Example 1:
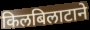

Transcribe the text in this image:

किलबिलाटाने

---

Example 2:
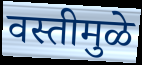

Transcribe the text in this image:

वस्तीमुळे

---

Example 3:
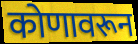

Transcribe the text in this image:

कोणावरून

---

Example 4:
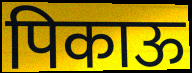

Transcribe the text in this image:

पिकाऊ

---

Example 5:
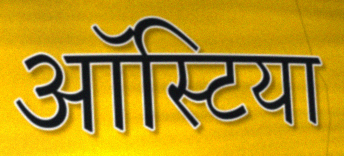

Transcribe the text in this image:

ऑस्टिया